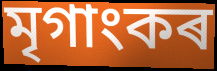
মৃগাংকৰ